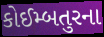
કોઈમ્બતુરના